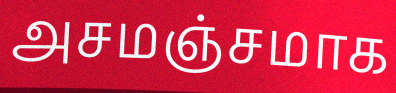
அசமஞ்சமாக